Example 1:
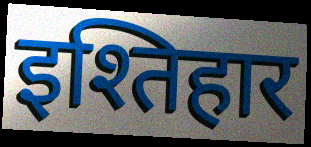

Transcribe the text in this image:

इश्तिहार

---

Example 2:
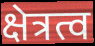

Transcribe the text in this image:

क्षेत्रत्व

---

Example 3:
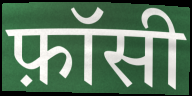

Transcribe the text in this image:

फ़ॉसी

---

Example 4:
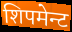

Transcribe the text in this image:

शिपमेन्ट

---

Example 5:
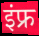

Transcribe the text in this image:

इंफ्र